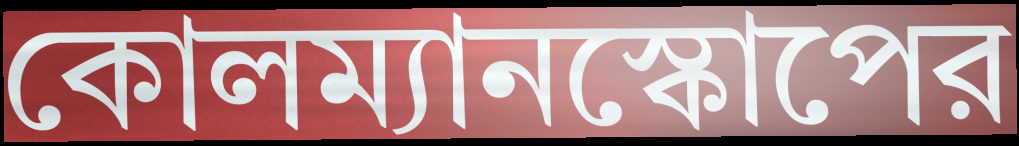
কোলম্যানস্কোপের